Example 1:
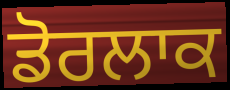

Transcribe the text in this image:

ਡੋਰਲਾਕ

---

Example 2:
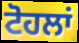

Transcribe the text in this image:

ਟੋਹਲਾਂ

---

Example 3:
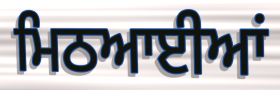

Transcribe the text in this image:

ਮਿਠਆਈਆਂ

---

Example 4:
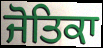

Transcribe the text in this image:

ਜੋਤਿਕਾ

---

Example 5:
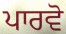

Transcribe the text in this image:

ਪਾਰਵੋ